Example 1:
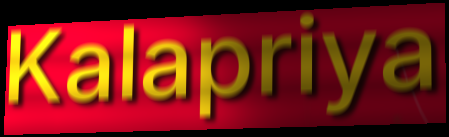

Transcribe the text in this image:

Kalapriya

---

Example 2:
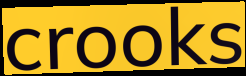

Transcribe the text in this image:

crooks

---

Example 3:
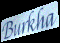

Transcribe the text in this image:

Burkha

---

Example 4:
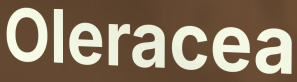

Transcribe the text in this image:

Oleracea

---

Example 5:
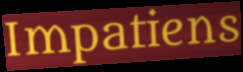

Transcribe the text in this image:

Impatiens